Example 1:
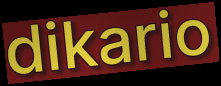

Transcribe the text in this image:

dikario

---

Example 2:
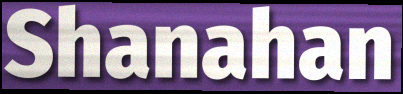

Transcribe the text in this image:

Shanahan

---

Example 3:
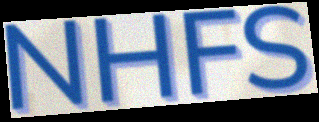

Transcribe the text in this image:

NHFS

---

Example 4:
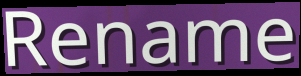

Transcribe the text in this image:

Rename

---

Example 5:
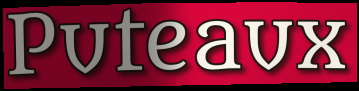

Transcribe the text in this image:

Puteaux